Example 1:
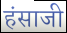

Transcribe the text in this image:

हंसाजी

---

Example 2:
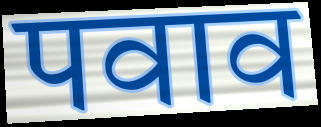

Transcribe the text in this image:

पवाव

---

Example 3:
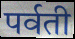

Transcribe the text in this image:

पर्वती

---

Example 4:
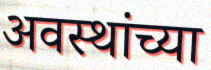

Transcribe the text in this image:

अवस्थांच्या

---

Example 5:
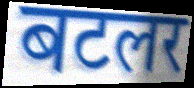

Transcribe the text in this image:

बटलर